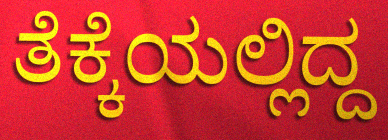
ತೆಕ್ಕೆಯಲ್ಲಿದ್ದ